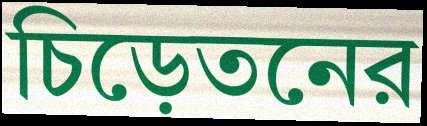
চিড়েতনের